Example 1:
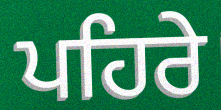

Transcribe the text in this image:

ਪਹਿਰੇ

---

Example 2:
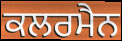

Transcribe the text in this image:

ਕਲਰਮੈਨ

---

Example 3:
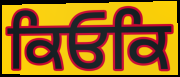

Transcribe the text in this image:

ਕਿਓਕਿ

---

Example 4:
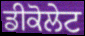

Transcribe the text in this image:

ਡੀਕੋਲੇਟ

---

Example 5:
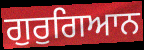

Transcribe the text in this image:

ਗੁਰੁਗਿਆਨ